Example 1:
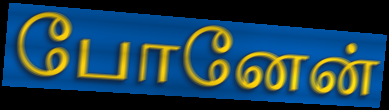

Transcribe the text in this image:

போனேன்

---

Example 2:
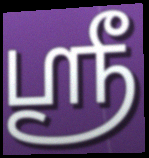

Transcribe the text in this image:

ஸ்ரீ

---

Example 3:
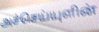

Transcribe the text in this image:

அச்செய்யுளின்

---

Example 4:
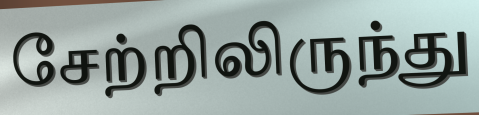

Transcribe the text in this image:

சேற்றிலிருந்து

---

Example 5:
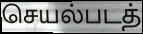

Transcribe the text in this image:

செயல்படத்